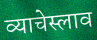
व्याचेस्लाव